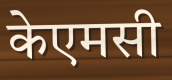
केएमसी